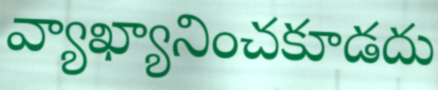
వ్యాఖ్యానించకూడదు